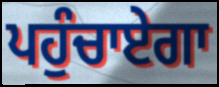
ਪਹੁੰਚਾਏਗਾ